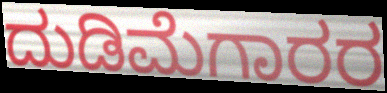
ದುಡಿಮೆಗಾರರ